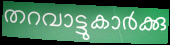
തറവാട്ടുകാർക്കു